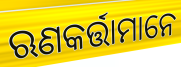
ଋଣକର୍ତ୍ତାମାନେ